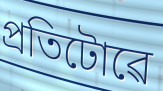
প্ৰতিটোৱে